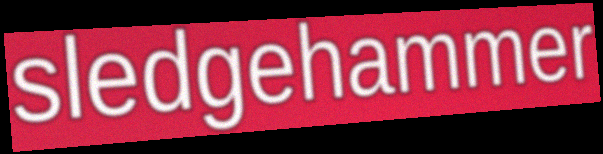
sledgehammer